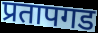
प्रतापगड